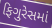
ફિગુરેસમાં